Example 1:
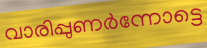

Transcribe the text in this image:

വാരിപ്പുണർന്നോട്ടെ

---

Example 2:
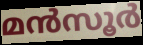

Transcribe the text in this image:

മൻസൂർ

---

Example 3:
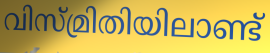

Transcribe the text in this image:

വിസ്മ്രിതിയിലാണ്ട്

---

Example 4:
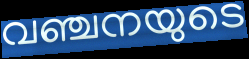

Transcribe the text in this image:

വഞ്ചനയുടെ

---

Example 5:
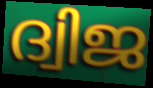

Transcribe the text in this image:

ദ്വിജ